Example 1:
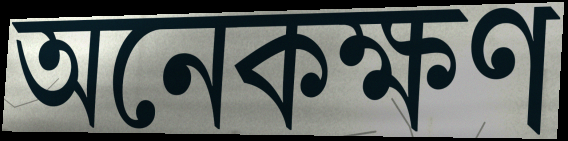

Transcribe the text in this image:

অনেকক্ষণ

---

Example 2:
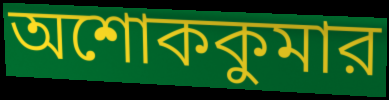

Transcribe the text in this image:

অশোককুমার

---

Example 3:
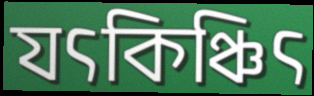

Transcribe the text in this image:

যৎকিঞ্চিৎ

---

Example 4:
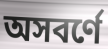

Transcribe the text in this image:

অসবর্ণে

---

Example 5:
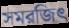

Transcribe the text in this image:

সমরজিৎ